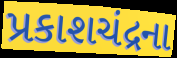
પ્રકાશચંદ્રના